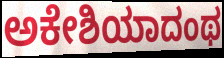
ಅಕೇಶಿಯಾದಂಥ